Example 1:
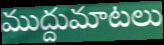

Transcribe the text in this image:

ముద్దుమాటలు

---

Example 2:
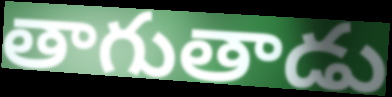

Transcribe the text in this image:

తాగుతాడు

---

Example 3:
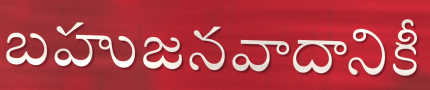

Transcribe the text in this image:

బహుజనవాదానికీ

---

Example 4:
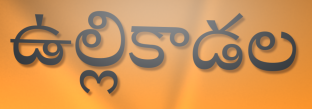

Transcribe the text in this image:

ఉల్లికాడల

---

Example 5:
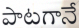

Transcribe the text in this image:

పాటగానే